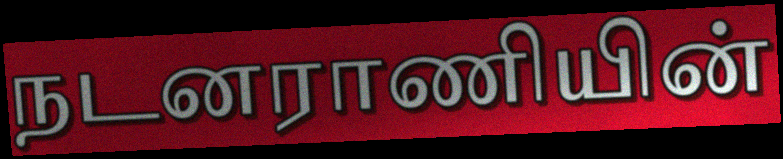
நடனராணியின்